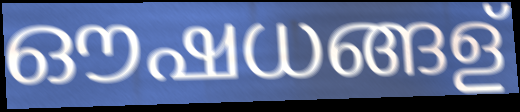
ഔഷധങ്ങള്